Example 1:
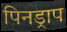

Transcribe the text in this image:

पिनड्राप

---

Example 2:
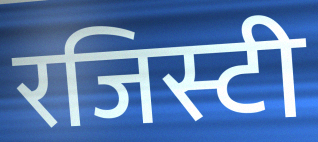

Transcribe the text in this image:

रजिस्टी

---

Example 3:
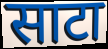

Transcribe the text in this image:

साटा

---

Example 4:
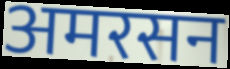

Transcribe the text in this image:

अमरसन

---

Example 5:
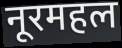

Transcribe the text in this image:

नूरमहल